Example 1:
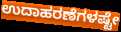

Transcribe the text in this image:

ಉದಾಹರಣೆಗಳಷ್ಟೇ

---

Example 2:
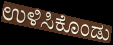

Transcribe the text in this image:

ಉಳಿಸಿಕೊಂಡು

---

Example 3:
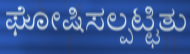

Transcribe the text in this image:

ಘೋಷಿಸಲ್ಪಟ್ಟಿತು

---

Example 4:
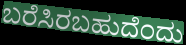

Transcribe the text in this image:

ಬರೆಸಿರಬಹುದೆಂದು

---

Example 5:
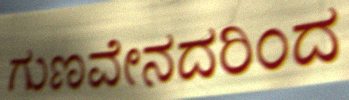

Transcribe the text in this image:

ಗುಣವೇನದರಿಂದ